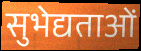
सुभेद्यताओं